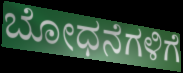
ಬೋಧನೆಗಳಿಗೆ